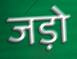
जड़ो